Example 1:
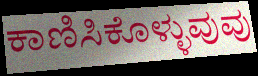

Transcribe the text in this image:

ಕಾಣಿಸಿಕೊಳ್ಳುವುವು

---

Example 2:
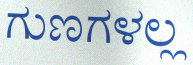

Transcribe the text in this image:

ಗುಣಗಳಲ್ಲ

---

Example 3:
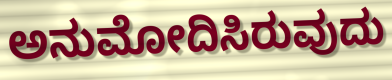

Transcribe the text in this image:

ಅನುಮೋದಿಸಿರುವುದು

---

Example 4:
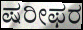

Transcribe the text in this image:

ಷರೀಫರ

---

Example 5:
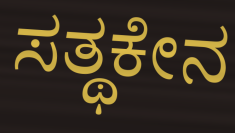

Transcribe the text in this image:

ಸತ್ಥಕೇನ